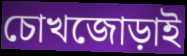
চোখজোড়াই